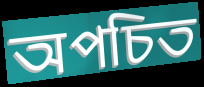
অপচিত